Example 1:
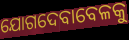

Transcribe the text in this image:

ଯୋଗଦେବାବେଳକୁ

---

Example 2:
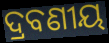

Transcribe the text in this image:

ଦ୍ରବଣୀୟ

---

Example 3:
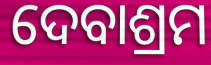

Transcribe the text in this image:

ଦେବାଶ୍ରମ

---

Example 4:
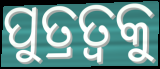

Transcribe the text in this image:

ପୁତ୍ରତ୍ଵକୁ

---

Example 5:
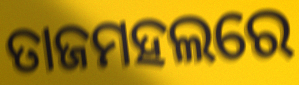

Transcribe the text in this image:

ତାଜମହଲରେ